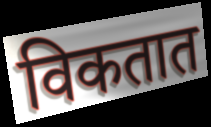
विकतात